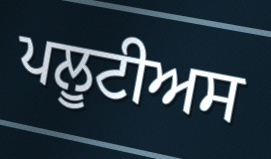
ਪਲੂਟੀਅਸ